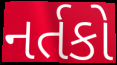
નર્તકો